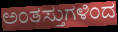
ಅಂತಸ್ತುಗಳಿಂದ